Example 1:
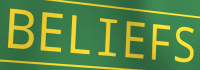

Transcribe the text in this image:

BELIEFS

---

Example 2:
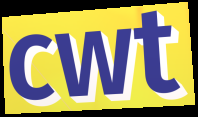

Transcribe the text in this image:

cwt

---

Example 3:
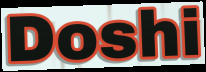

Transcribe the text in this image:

Doshi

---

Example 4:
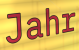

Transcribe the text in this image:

Jahr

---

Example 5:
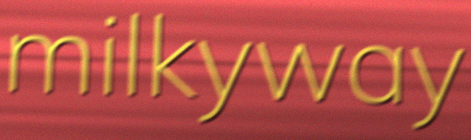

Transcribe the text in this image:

milkyway